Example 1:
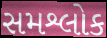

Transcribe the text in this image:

સમશ્લોક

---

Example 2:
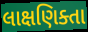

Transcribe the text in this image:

લાક્ષણિક્તા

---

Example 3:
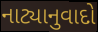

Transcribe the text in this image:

નાટ્યાનુવાદો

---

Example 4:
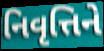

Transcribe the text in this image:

નિવૃત્તિને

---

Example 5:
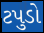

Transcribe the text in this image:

ટપુડો